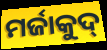
ମର୍ଜାକୁଦ୍